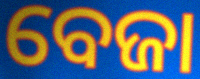
ବେଜା